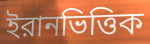
ইরানভিত্তিক